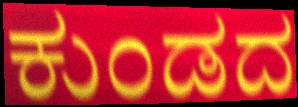
ಕುಂಡದ